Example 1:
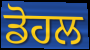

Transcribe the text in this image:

ਡੋਹਲ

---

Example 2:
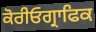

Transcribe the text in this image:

ਕੋਰੀਓਗ੍ਰਾਫਿਕ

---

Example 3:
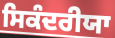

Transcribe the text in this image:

ਸਿਕੰਦਰੀਯਾ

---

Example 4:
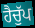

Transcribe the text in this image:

ਹੈਚੁੱਪ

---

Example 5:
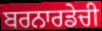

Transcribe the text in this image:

ਬਰਨਾਰਡੇਚੀ